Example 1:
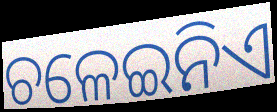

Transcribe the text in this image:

ଚଳେଇନିଏ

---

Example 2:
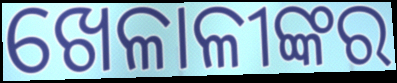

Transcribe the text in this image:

ଖେଳାଳୀଙ୍କର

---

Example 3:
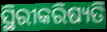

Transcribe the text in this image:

ସ୍ଥିରୀକରିଷ୍ଯତି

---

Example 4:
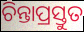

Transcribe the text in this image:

ଚିନ୍ତାପ୍ରସ୍ତୁତ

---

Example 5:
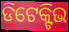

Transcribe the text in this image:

ଡିଟେକ୍ଟିଭ